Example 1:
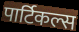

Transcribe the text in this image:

पार्टिकल्‍स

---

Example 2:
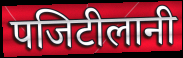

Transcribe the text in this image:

पजिटीलानी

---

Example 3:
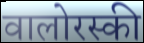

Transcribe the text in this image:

वालोरस्की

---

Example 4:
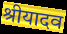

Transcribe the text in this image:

श्रीयादव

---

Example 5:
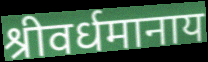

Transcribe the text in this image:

श्रीवर्धमानाय